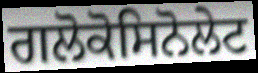
ਗਲੋਕੋਸਿਨੋਲੇਟ